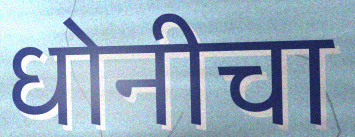
धोनीचा